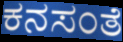
ಕನಸಂತೆ